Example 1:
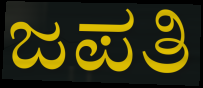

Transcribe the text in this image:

ಜಪತಿ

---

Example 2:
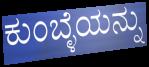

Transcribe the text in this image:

ಕುಂಬ್ಳೆಯನ್ನು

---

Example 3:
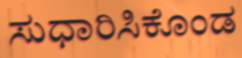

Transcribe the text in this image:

ಸುಧಾರಿಸಿಕೊಂಡ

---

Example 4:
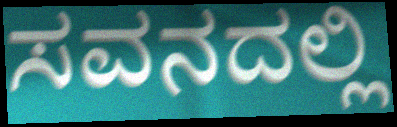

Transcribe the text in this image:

ಸವನದಲ್ಲಿ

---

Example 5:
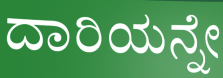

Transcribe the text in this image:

ದಾರಿಯನ್ನೇ